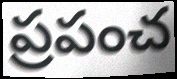
ప్రపంచ